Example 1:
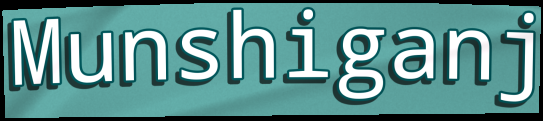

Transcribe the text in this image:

Munshiganj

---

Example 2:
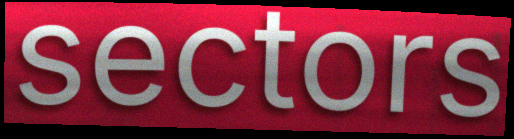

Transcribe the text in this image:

sectors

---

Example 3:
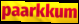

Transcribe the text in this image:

paarkkum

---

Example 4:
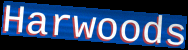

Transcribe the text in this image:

Harwoods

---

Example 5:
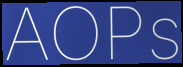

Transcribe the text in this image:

AOPs